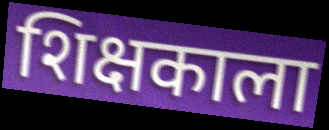
शिक्षकाला